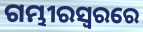
ଗମ୍ଭୀରସ୍ୱରରେ